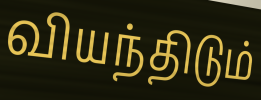
வியந்திடும்